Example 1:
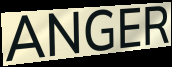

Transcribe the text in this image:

ANGER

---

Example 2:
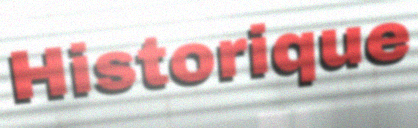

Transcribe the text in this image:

Historique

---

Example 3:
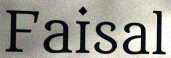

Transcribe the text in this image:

Faisal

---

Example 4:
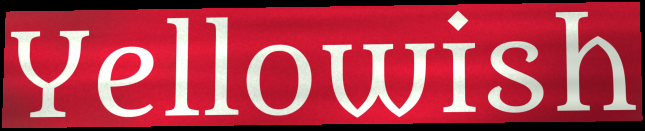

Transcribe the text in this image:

Yellowish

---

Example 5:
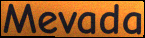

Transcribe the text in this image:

Mevada